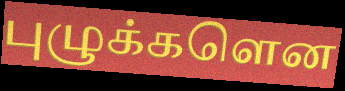
புழுக்களென